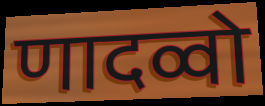
णादव्वो